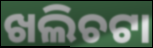
ଖଲିଚଟା